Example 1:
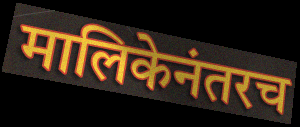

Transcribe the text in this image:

मालिकेनंतरच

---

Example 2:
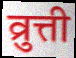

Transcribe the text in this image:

व्रुत्ती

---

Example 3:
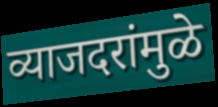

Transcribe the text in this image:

व्याजदरांमुळे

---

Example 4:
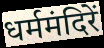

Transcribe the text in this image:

धर्ममंदिरें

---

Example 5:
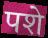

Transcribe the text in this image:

पशे